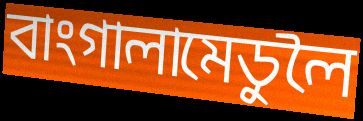
বাংগালামেডুলৈ